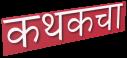
कथकचा